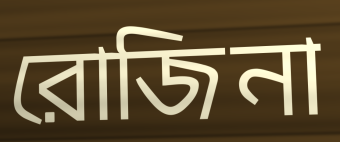
রোজিনা